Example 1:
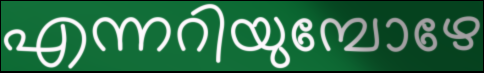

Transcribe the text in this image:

എന്നറിയുമ്പോഴേ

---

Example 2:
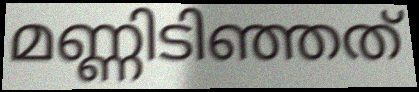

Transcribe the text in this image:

മണ്ണിടിഞ്ഞത്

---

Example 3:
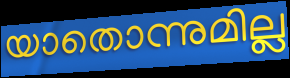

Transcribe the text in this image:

യാതൊന്നുമില്ല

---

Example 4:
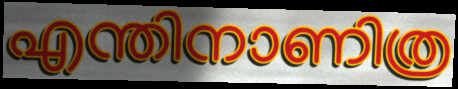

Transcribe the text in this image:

എന്തിനാണിത്ര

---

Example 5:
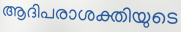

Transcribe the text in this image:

ആദിപരാശക്തിയുടെ